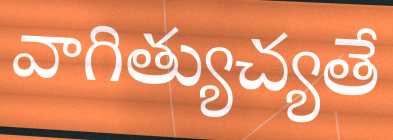
వాగిత్యుచ్యతే